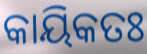
କାୟିକତଃ